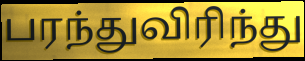
பரந்துவிரிந்து